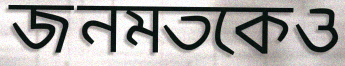
জনমতকেও